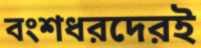
বংশধরদেরই